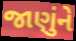
જાણુંને